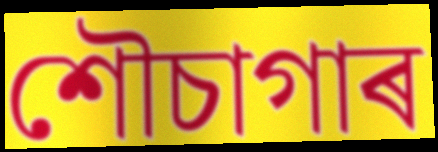
শৌচাগাৰ